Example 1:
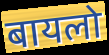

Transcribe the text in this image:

बायलो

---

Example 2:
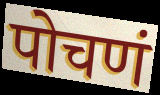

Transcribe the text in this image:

पोचणं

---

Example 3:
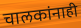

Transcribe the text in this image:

चालकांनाही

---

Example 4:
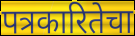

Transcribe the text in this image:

पत्रकारितेचा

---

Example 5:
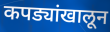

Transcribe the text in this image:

कपड्यांखालून